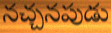
నచ్చనపుడు